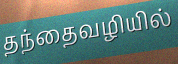
தந்தைவழியில்